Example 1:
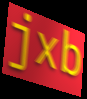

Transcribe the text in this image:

jxb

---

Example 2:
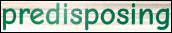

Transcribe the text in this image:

predisposing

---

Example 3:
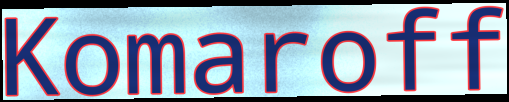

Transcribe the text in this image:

Komaroff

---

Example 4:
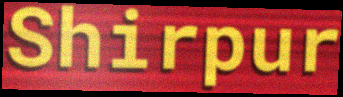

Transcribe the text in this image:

Shirpur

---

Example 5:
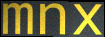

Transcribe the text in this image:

mnx